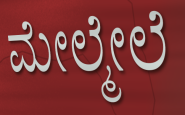
ಮೇಲ್ಮೇಲೆ